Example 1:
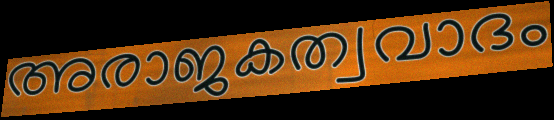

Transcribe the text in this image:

അരാജകത്വവാദം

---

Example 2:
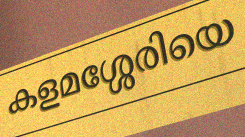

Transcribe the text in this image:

കളമശ്ശേരിയെ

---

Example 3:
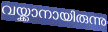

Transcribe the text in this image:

വയ്ക്കാനായിരുന്നു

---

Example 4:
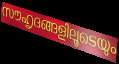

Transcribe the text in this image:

സൗഹൃദങ്ങളിലൂടെയും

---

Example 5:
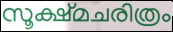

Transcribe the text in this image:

സൂക്ഷ്മചരിത്രം